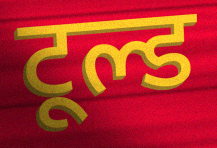
टूल्ड